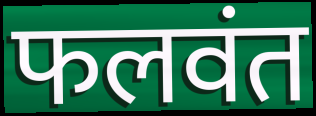
फलवंत